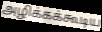
அழிக்கக்கூடிய